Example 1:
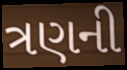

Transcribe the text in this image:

ત્રણની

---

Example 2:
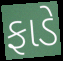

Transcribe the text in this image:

ફાડે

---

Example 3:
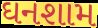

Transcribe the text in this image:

ઘનશામ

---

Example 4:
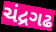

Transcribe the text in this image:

ચંદ્રગઢ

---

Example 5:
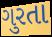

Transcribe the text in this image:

ગુરતા